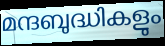
മന്ദബുദ്ധികളും